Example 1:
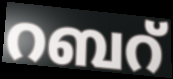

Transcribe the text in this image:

റബറ്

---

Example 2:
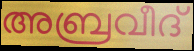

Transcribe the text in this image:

അബ്രവീദ്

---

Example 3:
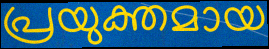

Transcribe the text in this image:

പ്രയുക്തമായ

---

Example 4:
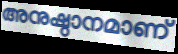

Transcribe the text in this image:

അനുഷ്ഠാനമാണ്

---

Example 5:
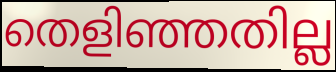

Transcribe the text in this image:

തെളിഞ്ഞതില്ല